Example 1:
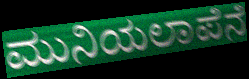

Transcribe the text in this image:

ಮುನಿಯಲಾಪೆನೆ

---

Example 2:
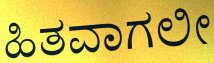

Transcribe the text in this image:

ಹಿತವಾಗಲೀ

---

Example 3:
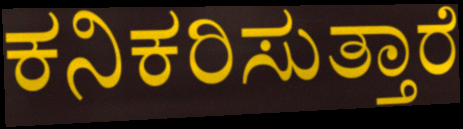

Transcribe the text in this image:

ಕನಿಕರಿಸುತ್ತಾರೆ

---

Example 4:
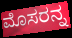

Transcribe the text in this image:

ಮೊಸರನ್ನ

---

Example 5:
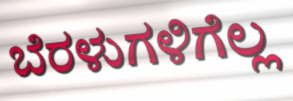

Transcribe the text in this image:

ಬೆರಳುಗಳಿಗೆಲ್ಲ